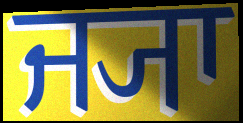
ਜ੍ਯਾ